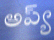
అప్య్